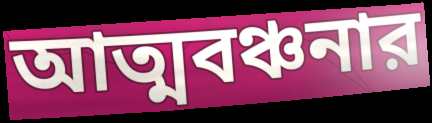
আত্মবঞ্চনার